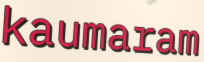
kaumaram